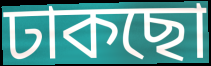
ঢাকছো